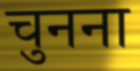
चुनना